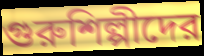
গুরুশিল্পীদের